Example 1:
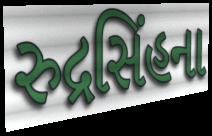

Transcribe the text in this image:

રુદ્રસિંહના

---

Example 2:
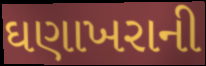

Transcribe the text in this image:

ઘણાખરાની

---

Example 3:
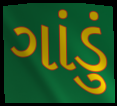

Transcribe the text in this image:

ગાંડું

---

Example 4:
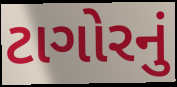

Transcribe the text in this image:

ટાગોરનું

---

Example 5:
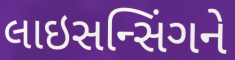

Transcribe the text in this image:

લાઇસન્સિંગને